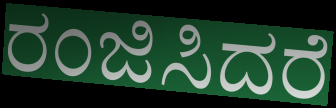
ರಂಜಿಸಿದರೆ